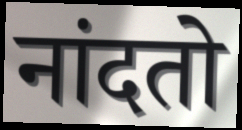
नांदतो